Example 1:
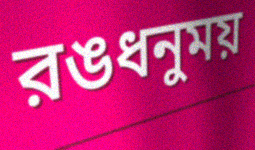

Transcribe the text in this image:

রঙধনুময়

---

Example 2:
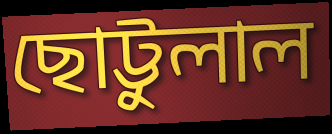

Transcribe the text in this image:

ছোট্টুলাল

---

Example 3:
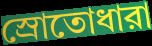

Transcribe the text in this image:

স্রোতোধারা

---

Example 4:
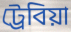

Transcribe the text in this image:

ট্রেবিয়া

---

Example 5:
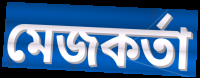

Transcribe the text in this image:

মেজকর্তা